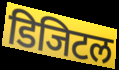
डिजिटल